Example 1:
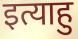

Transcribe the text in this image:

इत्याहु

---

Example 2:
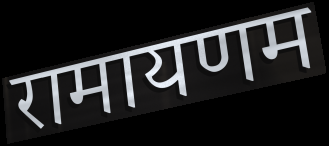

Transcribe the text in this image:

रामायणम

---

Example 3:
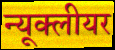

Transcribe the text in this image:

न्यूक्लीयर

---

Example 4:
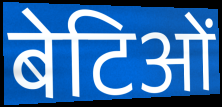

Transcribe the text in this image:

बेटिओं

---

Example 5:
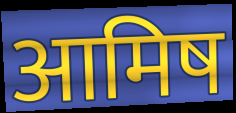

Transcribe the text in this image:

आमिष